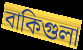
বাকিগুলা